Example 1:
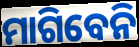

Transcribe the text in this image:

ମାଗିବେନି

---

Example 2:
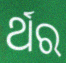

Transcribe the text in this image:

ର୍ଥର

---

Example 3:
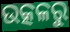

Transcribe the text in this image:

ଉତ୍କଳରୁ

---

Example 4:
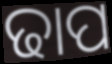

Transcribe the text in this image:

ଢାପ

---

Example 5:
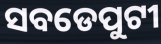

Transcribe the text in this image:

ସବଡେପୁଟୀ